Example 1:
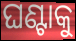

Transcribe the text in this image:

ଘଣ୍ଟାକୁ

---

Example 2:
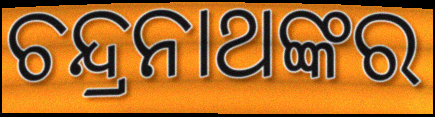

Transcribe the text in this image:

ଚନ୍ଦ୍ରନାଥଙ୍କର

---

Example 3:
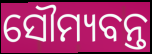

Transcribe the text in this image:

ସୌମ୍ୟବନ୍ତ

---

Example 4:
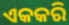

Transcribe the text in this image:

ଏକକରି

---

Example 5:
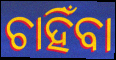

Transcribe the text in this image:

ଚାହିଁବା